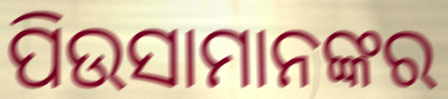
ପିଉସାମାନଙ୍କର